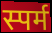
स्पर्म